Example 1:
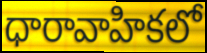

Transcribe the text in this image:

ధారావాహికలో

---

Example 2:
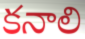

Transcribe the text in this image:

కనాలి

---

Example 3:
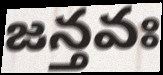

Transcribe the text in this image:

జన్తవః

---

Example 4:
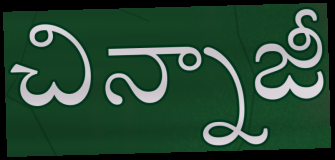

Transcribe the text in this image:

చిన్నాజీ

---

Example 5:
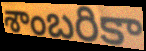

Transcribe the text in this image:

శాంబరికా